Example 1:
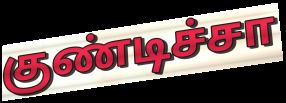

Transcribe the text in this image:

குண்டிச்சா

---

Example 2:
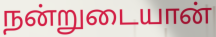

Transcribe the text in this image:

நன்றுடையான்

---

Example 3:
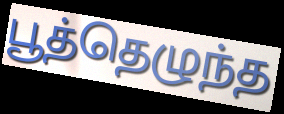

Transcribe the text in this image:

பூத்தெழுந்த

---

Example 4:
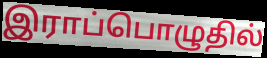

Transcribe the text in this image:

இராப்பொழுதில்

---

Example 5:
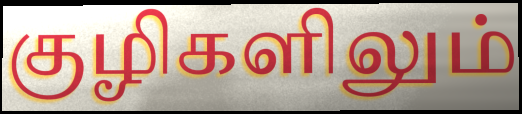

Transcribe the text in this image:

குழிகளிலும்